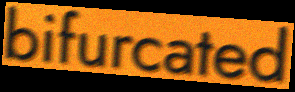
bifurcated